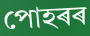
পোহৰৰ